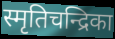
स्मृतिचन्द्रिका